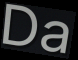
Da